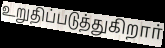
உறுதிப்படுத்துகிறார்